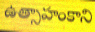
ఉత్సాహంకాని